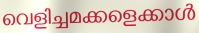
വെളിച്ചമക്കളെക്കാൾ